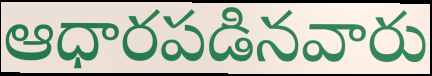
ఆధారపడినవారు